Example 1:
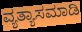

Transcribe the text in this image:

ವ್ಯತ್ಯಾಸಮಾಡಿ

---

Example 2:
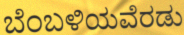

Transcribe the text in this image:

ಬೆಂಬಳಿಯವೆರಡು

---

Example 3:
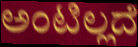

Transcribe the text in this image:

ಅಂಟಿಲ್ಲದೆ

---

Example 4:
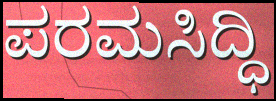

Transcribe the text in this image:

ಪರಮಸಿದ್ಧಿ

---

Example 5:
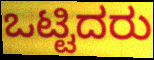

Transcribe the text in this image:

ಒಟ್ಟಿದರು